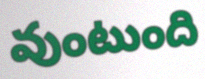
వుంటుంది